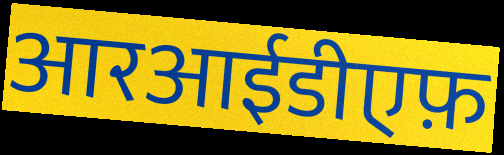
आरआईडीएफ़